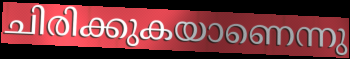
ചിരിക്കുകയാണെന്നു